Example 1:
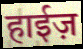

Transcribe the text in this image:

हाईज़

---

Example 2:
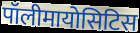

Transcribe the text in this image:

पॉलीमायोसिटिस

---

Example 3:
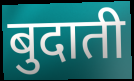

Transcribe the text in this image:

बुदाती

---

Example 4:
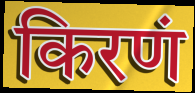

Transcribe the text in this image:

किरणं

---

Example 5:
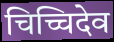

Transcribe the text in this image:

चिच्चिदेव